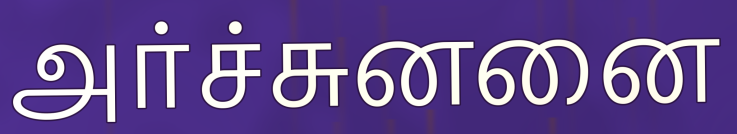
அர்ச்சுனனை